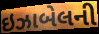
ઇઝાબેલની